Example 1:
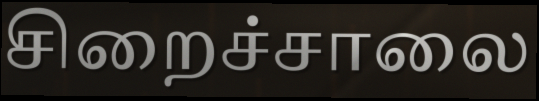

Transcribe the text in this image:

சிறைச்சாலை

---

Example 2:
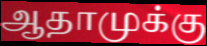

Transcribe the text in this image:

ஆதாமுக்கு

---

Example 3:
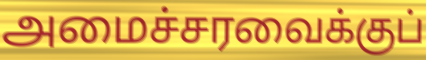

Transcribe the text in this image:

அமைச்சரவைக்குப்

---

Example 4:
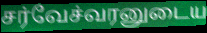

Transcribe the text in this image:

சர்வேச்வரனுடைய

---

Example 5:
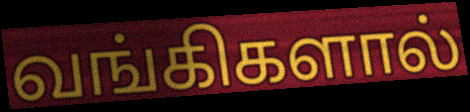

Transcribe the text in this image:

வங்கிகளால்